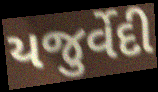
યજુર્વેદી